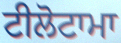
ਟੀਲੋਟਾਮਾ